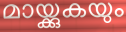
മായ്ക്കുകയും